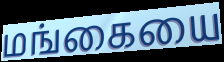
மங்கையை